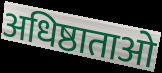
अधिष्ठाताओ